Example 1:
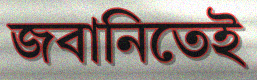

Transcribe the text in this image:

জবানিতেই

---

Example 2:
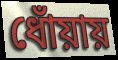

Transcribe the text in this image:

ধোঁয়ায়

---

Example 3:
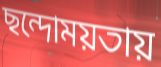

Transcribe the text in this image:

ছন্দোময়তায়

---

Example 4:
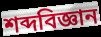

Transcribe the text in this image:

শব্দবিজ্ঞান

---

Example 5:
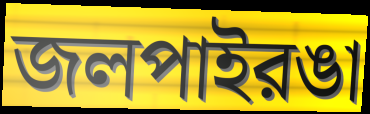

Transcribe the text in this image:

জলপাইরঙা